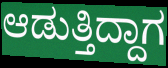
ಆಡುತ್ತಿದ್ದಾಗ